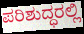
ಪರಿಶುದ್ಧರಲ್ಲಿ